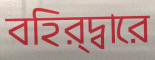
বহির্‌দ্বারে